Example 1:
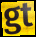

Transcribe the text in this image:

gt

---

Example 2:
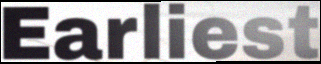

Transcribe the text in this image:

Earliest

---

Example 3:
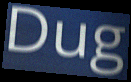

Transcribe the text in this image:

Dug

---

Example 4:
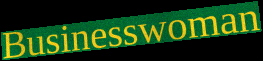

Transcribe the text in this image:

Businesswoman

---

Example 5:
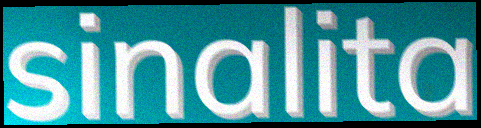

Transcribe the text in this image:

sinalita